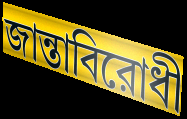
জান্তাবিরোধী